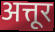
अत्तूर